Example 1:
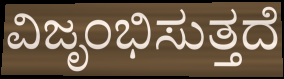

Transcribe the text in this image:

ವಿಜೃಂಭಿಸುತ್ತದೆ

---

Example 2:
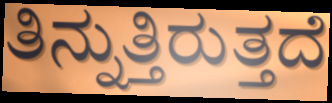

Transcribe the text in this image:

ತಿನ್ನುತ್ತಿರುತ್ತದೆ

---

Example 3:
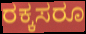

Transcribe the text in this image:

ರಕ್ಕಸರೂ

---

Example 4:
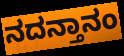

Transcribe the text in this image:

ನದನ್ತಾನಂ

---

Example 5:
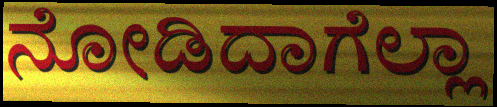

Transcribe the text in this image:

ನೋಡಿದಾಗೆಲ್ಲಾ